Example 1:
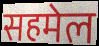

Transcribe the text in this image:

सहमेल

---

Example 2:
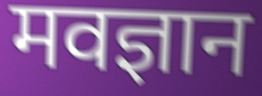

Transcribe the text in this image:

मवज्ञान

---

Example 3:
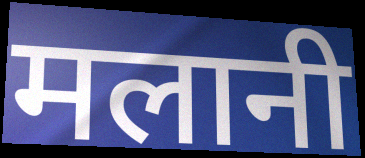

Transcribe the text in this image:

मलानी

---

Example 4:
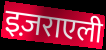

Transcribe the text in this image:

इज़राएली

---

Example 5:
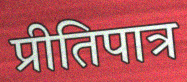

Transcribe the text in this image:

प्रीतिपात्र